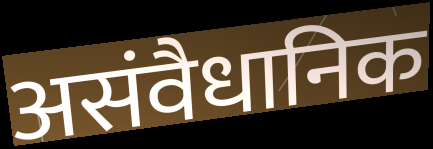
असंवैधानिक